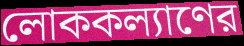
লোককল্যাণের